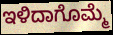
ಇಳಿದಾಗೊಮ್ಮೆ